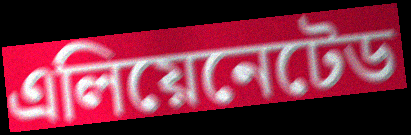
এলিয়েনেটেড